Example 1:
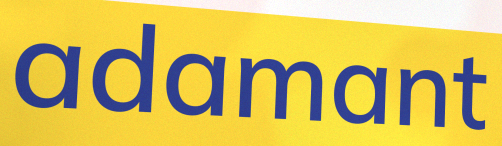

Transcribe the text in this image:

adamant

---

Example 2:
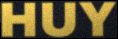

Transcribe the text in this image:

HUY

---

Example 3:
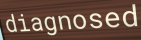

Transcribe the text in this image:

diagnosed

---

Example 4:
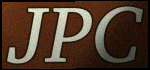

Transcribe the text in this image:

JPC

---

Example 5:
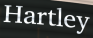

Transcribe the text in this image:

Hartley